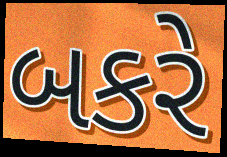
બકરે